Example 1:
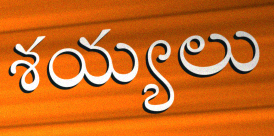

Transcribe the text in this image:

శయ్యలు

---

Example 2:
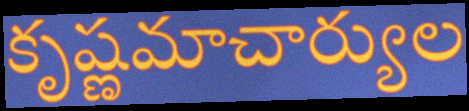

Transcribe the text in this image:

కృష్ణమాచార్యుల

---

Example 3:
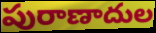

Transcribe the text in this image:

పురాణాదుల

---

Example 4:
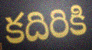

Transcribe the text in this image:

కదిరికి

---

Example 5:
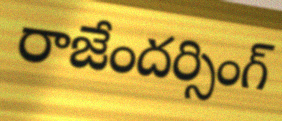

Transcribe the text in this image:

రాజేందర్సింగ్